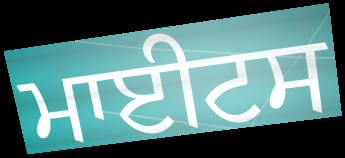
ਮਾਈਟਸ